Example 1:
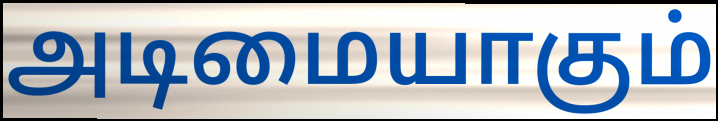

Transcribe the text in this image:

அடிமையாகும்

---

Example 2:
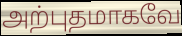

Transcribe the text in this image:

அற்புதமாகவே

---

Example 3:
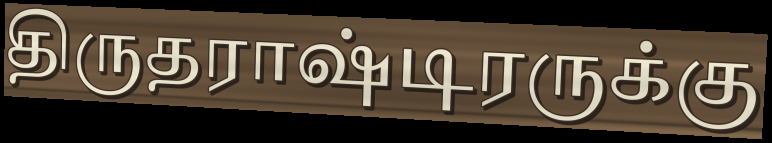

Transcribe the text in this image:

திருதராஷ்டிரருக்கு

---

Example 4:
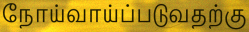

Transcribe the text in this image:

நோய்வாய்ப்படுவதற்கு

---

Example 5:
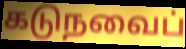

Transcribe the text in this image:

கடுநவைப்